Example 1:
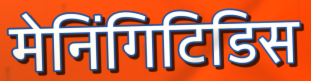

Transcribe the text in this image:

मेनिंगिटिडिस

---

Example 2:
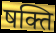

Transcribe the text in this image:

षक्ति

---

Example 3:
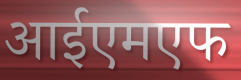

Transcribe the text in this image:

आईएमएफ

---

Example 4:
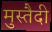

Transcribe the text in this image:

मुस्तैदी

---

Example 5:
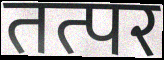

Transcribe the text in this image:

तत्पर